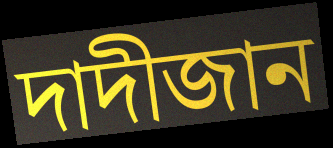
দাদীজান